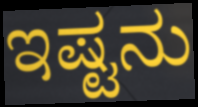
ಇಷ್ಟನು